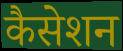
कैसेशन